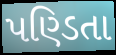
પણ્ડિતા